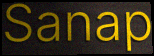
Sanap